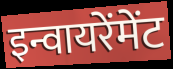
इन्वायरेंमेंट